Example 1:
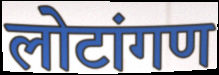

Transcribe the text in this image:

लोटांगण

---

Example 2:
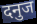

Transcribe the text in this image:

दनुज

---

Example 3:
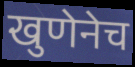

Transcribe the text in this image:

खुणेनेच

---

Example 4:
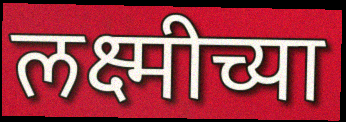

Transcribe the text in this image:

लक्ष्मीच्या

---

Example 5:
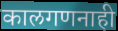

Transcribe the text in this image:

कालगणनाही